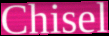
Chisel